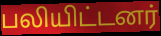
பலியிட்டனர்